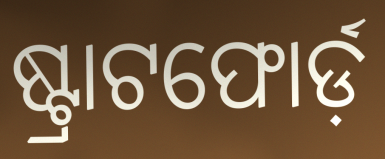
ଷ୍ଟ୍ରାଟଫୋର୍ଡ଼